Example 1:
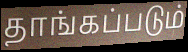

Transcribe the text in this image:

தாங்கப்படும்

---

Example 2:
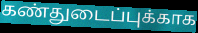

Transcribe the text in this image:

கண்துடைப்புக்காக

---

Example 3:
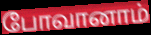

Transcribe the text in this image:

போவானாம்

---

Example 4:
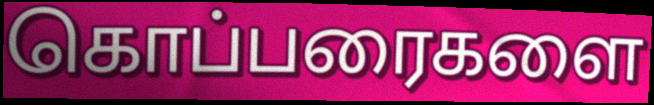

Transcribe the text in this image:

கொப்பரைகளை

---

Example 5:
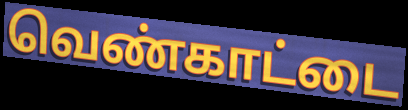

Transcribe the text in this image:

வெண்காட்டை